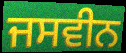
ਜਸਵੀਨ